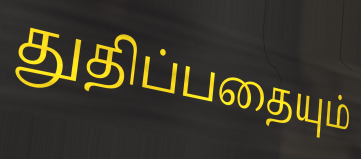
துதிப்பதையும்